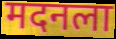
मदनला